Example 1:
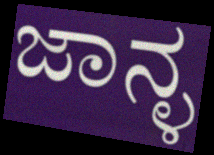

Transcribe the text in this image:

ಜಾನ್ಳ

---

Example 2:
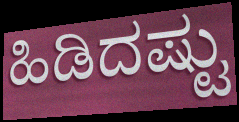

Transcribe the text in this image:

ಹಿಡಿದಷ್ಟು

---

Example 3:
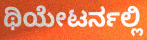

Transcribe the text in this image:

ಥಿಯೇಟರ್ನಲ್ಲಿ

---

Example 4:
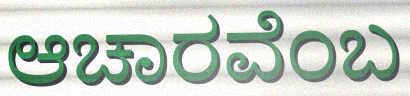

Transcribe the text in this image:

ಆಚಾರವೆಂಬ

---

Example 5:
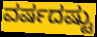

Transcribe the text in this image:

ವರ್ಷದಷ್ಟು